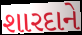
શારદાને